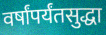
वर्षांपर्यंतसुद्धा